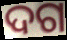
ଦଗ